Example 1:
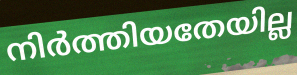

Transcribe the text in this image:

നിർത്തിയതേയില്ല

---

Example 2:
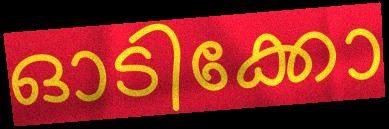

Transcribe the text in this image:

ഓടിക്കോ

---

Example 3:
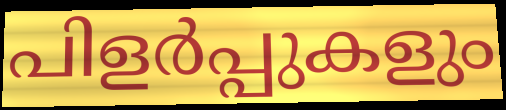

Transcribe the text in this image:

പിളർപ്പുകളും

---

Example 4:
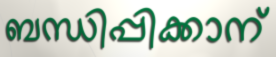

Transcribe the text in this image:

ബന്ധിപ്പിക്കാന്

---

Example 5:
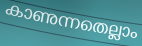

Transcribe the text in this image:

കാണുന്നതെല്ലാം